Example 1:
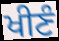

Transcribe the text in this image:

ਖੀਣੰ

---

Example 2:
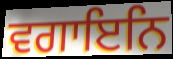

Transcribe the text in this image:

ਵਗਾਇਨਿ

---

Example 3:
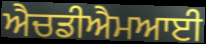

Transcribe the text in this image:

ਐਚਡੀਐਮਆਈ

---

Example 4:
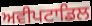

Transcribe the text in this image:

ਅਵੀਪਟਾਡਿਲ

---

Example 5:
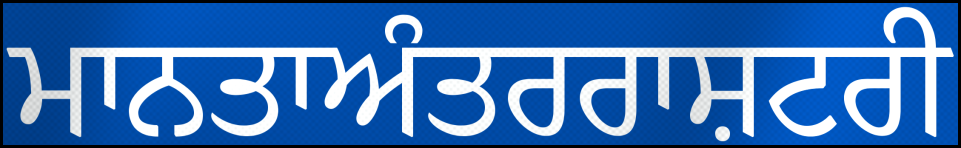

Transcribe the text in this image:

ਮਾਨਤਾਅੰਤਰਰਾਸ਼ਟਰੀ